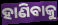
ହାଣିବାକୁ